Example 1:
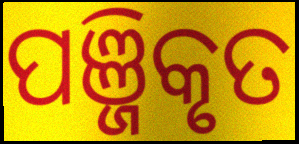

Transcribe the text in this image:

ପଞ୍ଜିକୃତ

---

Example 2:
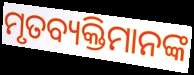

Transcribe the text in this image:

ମୃତବ୍ୟକ୍ତିମାନଙ୍କ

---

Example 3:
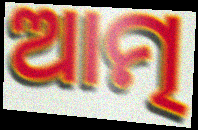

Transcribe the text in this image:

ଆତ୍ମ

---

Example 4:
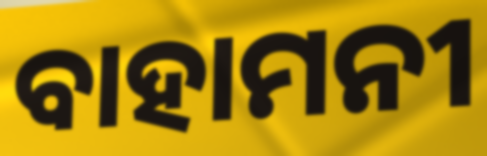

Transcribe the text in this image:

ବାହାମନୀ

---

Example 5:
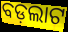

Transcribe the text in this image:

ବଡ଼ଲାଟ